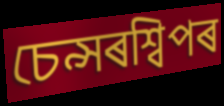
চেন্সৰশ্বিপৰ